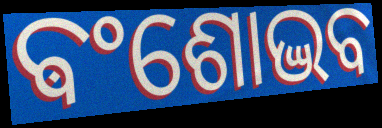
ଵଂଶୋଦ୍ଭବ